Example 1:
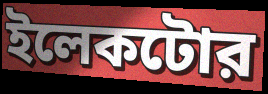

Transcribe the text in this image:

ইলেকটোর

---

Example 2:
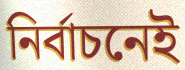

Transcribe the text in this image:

নির্বাচনেই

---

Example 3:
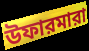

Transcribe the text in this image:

উফারমারা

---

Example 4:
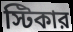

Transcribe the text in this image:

স্টিকার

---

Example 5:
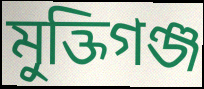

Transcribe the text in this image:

মুক্তিগঞ্জ